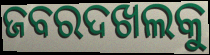
ଜବରଦଖଲକୁ